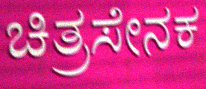
ಚಿತ್ರಸೇನಕ